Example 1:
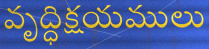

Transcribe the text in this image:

వృద్ధిక్షయములు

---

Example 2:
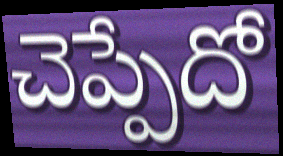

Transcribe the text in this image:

చెప్పేదో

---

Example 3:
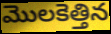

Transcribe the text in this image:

మొలకెత్తిన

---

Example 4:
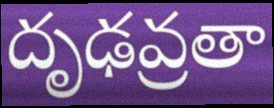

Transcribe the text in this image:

దృఢవ్రతా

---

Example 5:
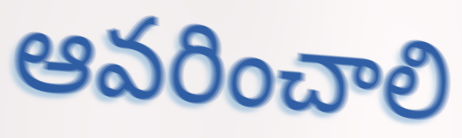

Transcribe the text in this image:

ఆవరించాలి